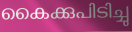
കൈക്കുപിടിച്ചു